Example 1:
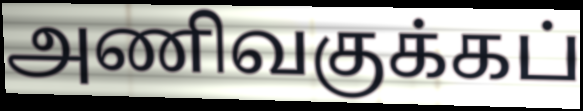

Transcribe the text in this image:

அணிவகுக்கப்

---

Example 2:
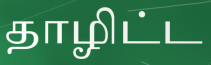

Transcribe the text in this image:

தாழிட்ட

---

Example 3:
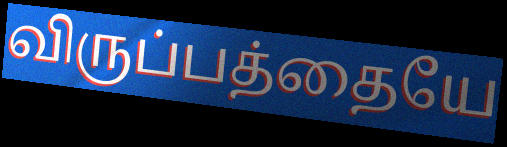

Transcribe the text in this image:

விருப்பத்தையே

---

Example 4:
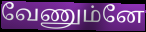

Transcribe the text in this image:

வேணும்னே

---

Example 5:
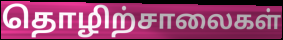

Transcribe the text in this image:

தொழிற்சாலைகள்